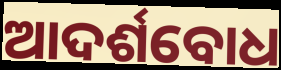
ଆଦର୍ଶବୋଧ